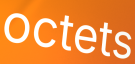
octets